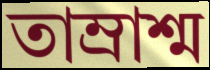
তাম্রাশ্ম